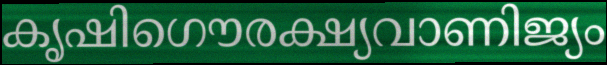
കൃഷിഗൌരക്ഷ്യവാണിജ്യം